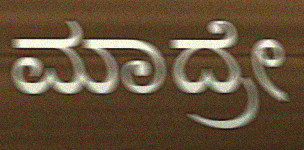
ಮಾದ್ರೇ